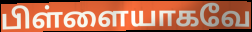
பிள்ளையாகவே